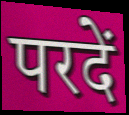
परदें